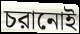
চরানোই